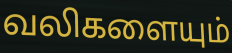
வலிகளையும்